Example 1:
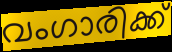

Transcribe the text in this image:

വംഗാരിക്ക്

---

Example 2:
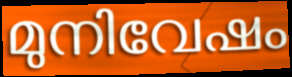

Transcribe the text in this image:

മുനിവേഷം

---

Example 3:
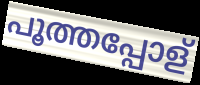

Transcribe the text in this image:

പൂത്തപ്പോള്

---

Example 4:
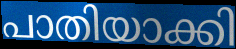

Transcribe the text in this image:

പാതിയാക്കി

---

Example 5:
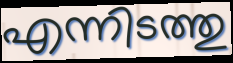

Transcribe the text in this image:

എന്നിടത്തു